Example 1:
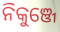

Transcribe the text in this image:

ନିକୁଞ୍ଜେ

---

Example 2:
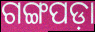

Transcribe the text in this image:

ଗଙ୍ଗପଡ଼ା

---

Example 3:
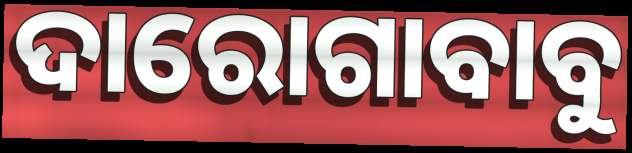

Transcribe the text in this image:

ଦାରୋଗାବାବୁ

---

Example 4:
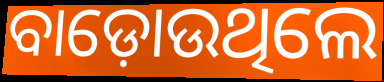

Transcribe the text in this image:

ବାଡ଼ୋଉଥିଲେ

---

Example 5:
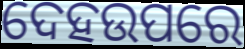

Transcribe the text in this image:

ଦେହଉପରେ